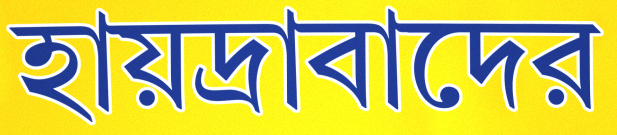
হায়দ্রাবাদের